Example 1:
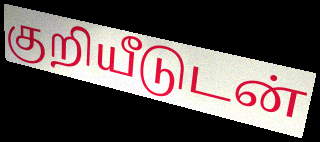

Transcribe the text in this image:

குறியீடுடன்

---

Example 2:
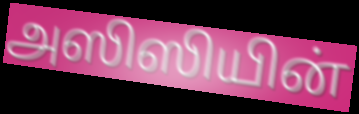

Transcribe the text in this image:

அஸிஸியின்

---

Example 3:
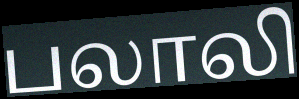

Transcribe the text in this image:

பலாலி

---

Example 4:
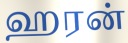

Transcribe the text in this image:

ஹரன்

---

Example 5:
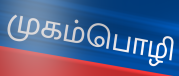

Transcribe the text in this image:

முகம்பொழி